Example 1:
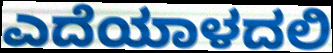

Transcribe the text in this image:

ಎದೆಯಾಳದಲಿ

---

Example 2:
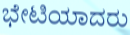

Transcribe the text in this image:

ಭೇಟಿಯಾದರು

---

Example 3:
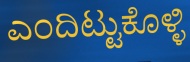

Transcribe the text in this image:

ಎಂದಿಟ್ಟುಕೊಳ್ಳಿ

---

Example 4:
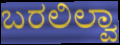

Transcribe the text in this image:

ಬರಲಿಲ್ವಾ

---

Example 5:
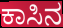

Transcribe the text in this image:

ಕಾಸಿನ